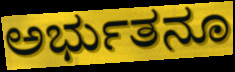
ಅರ್ಭುತನೂ